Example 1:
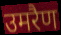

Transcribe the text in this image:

उमरैण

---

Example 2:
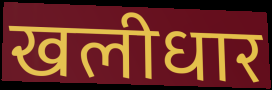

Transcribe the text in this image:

खलीधार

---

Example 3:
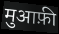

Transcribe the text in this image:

मुआफ़ी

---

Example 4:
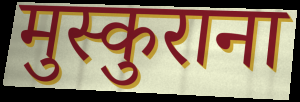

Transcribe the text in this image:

मुस्कुराना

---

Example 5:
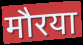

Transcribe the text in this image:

मौरया